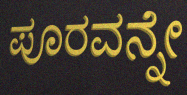
ಪೂರವನ್ನೇ